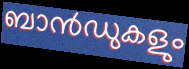
ബാൻഡുകളും